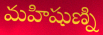
మహిషుణ్ని